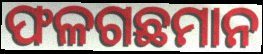
ଫଳଗଛମାନ